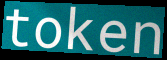
token